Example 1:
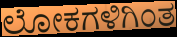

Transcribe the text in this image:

ಲೋಕಗಳಿಗಿಂತ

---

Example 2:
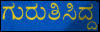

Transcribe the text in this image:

ಗುರುತಿಸಿದ್ದ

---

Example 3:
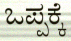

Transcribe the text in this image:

ಒಪ್ಪಕ್ಕೆ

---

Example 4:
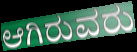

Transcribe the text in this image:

ಆಗಿರುವರು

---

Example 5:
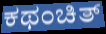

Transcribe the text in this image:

ಕಥಂಚಿತ್